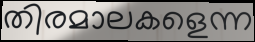
തിരമാലകളെന്ന